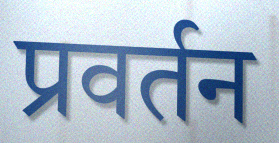
प्रवर्तन